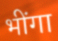
भींगा